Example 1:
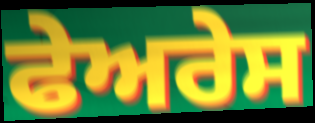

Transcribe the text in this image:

ਫੇਅਰੇਸ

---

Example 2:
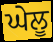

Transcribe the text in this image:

ਘੇਲੂ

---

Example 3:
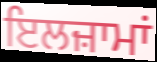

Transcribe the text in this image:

ਇਲਜ਼ਾਮਾਂ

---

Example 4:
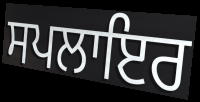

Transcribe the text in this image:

ਸਪਲਾਇਰ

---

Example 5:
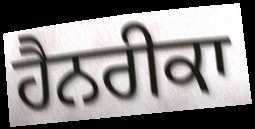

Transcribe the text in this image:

ਹੈਨਰੀਕਾ